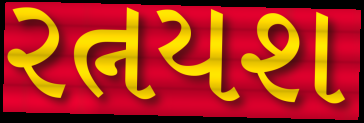
રત્નયશ